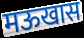
मऊखास